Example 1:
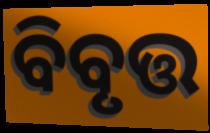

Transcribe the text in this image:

ବିବୃତ୍ତ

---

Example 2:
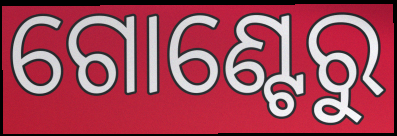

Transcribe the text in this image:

ଗୋଣ୍ଟେରୁ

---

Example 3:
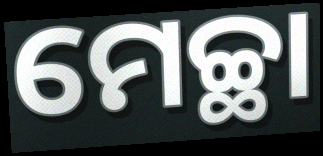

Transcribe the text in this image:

ମେଚ୍ଛା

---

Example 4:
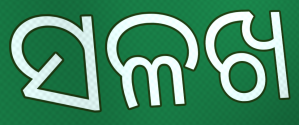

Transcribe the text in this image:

ସଳଖ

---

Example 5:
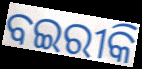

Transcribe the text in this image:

ବଇରୀକି